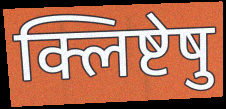
क्लिष्टेषु